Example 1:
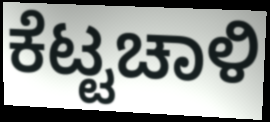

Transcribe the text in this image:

ಕೆಟ್ಟಚಾಳಿ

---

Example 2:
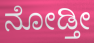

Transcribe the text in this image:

ನೋಡ್ತೀ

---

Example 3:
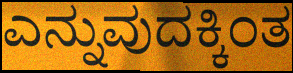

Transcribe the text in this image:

ಎನ್ನುವುದಕ್ಕಿಂತ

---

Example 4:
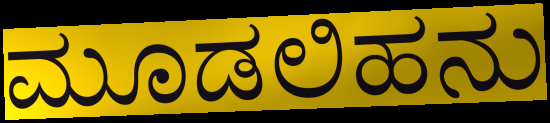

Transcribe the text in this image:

ಮೂಡಲಿಹನು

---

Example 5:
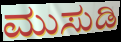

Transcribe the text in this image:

ಮುಸುಡಿ